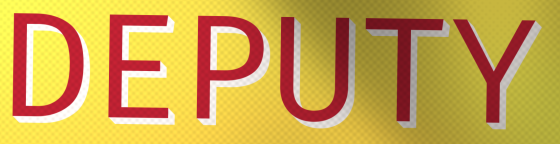
DEPUTY